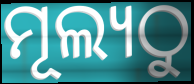
ମୂଲ୍ୟଠୁ